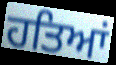
ਹਤਿਆਂ